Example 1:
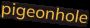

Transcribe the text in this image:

pigeonhole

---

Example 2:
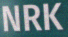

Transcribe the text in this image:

NRK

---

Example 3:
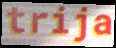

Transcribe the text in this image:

trija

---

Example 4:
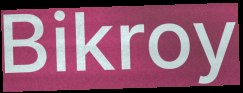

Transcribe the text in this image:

Bikroy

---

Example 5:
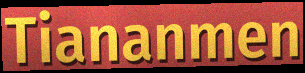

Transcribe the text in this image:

Tiananmen